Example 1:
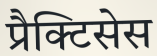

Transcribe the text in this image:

प्रैक्टिसेस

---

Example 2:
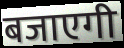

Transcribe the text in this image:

बजाएगी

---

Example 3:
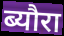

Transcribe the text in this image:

ब्यौरा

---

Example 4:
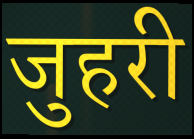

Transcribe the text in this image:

जुहरी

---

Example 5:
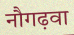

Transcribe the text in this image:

नौगढ़वा